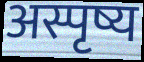
अस्पृष्य